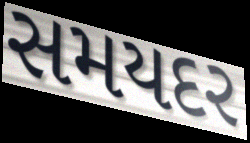
સમયદર